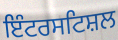
ਇੰਟਰਸਟਿਸ਼ਲ